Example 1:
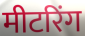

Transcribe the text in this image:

मीटरिंग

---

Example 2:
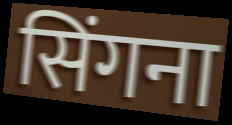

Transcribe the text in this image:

सिंगना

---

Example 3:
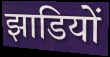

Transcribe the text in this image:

झाडियों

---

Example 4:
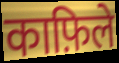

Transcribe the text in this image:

काफ़िले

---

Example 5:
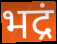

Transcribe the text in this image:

भद्रं